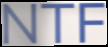
NTF